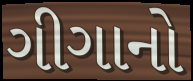
ગીગાનો